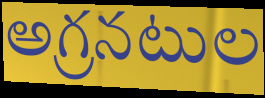
అగ్రనటుల